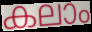
കലാം